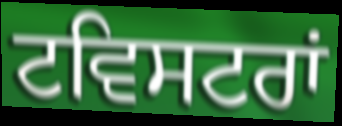
ਟਵਿਸਟਰਾਂ